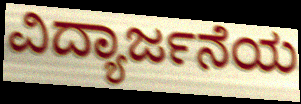
ವಿದ್ಯಾರ್ಜನೆಯ